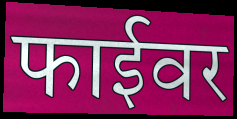
फाईवर